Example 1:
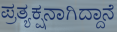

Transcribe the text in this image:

ಪ್ರತ್ಯಕ್ಷನಾಗಿದ್ದಾನೆ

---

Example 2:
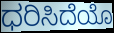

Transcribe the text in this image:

ಧರಿಸಿದೆಯೊ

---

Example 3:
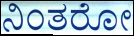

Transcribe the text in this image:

ನಿಂತರೋ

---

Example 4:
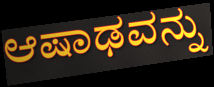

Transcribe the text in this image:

ಆಷಾಢವನ್ನು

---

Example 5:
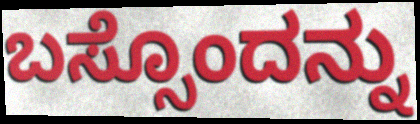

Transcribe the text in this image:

ಬಸ್ಸೊಂದನ್ನು